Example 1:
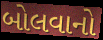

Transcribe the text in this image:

બોલવાનો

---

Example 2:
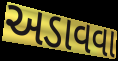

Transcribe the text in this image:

અડાવવા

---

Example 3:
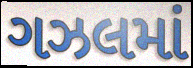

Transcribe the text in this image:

ગઝલમાં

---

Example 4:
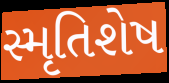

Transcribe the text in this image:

સ્મૃતિશેષ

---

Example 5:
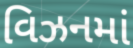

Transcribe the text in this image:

વિઝનમાં